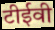
टीईवी